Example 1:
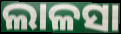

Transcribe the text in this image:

ଲାଳସା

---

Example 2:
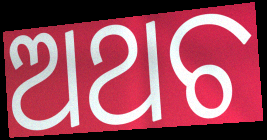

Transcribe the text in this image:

ଅଥଚ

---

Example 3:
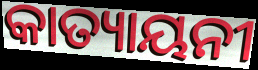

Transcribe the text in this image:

କାତ୍ୟାୟନୀ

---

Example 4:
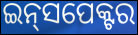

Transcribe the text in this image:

ଇନ୍‍ସପେକ୍ଟର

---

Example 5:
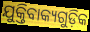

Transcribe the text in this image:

ଯୁକ୍ତିବାକ୍ୟଗୁଡ଼ିକ